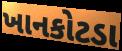
ખાનકોટડા